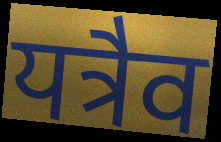
यत्रैव